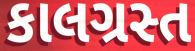
કાલગ્રસ્ત